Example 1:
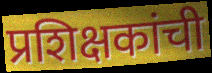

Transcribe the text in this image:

प्रशिक्षकांची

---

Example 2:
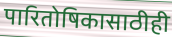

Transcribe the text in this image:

पारितोषिकासाठीही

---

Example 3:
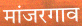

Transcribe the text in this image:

मांजरगाव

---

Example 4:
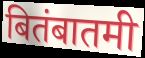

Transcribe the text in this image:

बितंबातमी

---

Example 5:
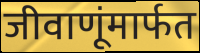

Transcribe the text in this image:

जीवाणूंमार्फत